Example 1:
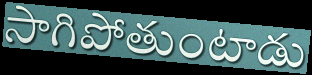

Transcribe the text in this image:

సాగిపోతుంటాడు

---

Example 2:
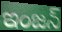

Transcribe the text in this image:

ఇంజన్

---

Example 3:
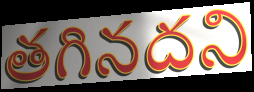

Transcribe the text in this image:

తగినదని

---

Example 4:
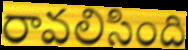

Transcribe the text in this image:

రావలిసింది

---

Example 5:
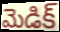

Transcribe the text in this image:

మెడిక్